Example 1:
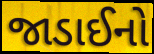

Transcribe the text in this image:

જાડાઈનો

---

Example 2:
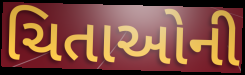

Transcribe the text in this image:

ચિતાઓની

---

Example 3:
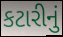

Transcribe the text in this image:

કટારીનું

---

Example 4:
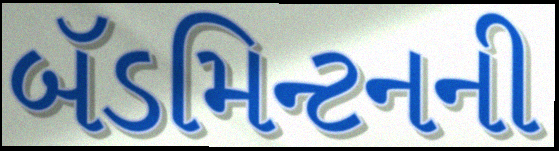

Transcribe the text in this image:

બૅડમિન્ટનની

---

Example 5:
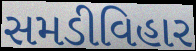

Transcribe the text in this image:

સમડીવિહાર